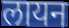
लायन